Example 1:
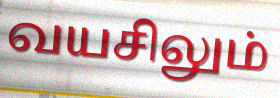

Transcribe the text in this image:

வயசிலும்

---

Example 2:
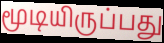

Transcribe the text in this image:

மூடியிருப்பது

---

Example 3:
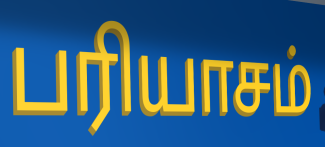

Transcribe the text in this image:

பரியாசம்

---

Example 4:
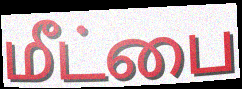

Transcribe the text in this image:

மீட்பை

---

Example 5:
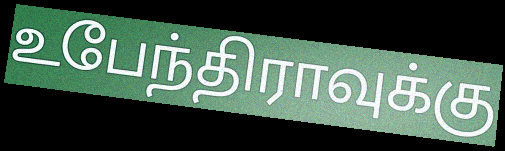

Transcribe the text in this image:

உபேந்திராவுக்கு